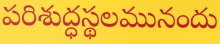
పరిశుద్ధస్థలమునందు